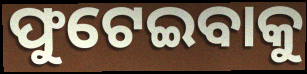
ଫୁଟେଇବାକୁ